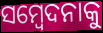
ସମ୍ବେଦନାକୁ